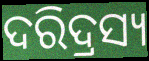
ଦରିଦ୍ରସ୍ୟ